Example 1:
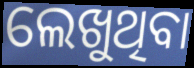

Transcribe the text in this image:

ଲେଖୁଥିବା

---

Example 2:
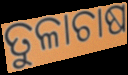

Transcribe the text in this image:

ତୁଳାଚାଷ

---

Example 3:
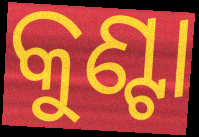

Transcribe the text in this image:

କୁଣ୍ଟା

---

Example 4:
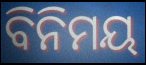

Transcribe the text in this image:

ବିନିମୟ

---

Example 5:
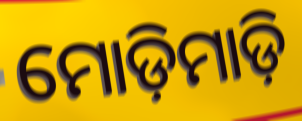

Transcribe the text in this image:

ମୋଡ଼ିମାଡ଼ି